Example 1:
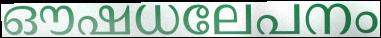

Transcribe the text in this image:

ഔഷധലേപനം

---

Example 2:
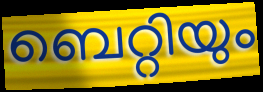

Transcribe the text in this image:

ബെറ്റിയും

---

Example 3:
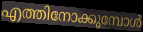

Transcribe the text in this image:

എത്തിനോക്കുമ്പോൾ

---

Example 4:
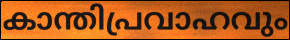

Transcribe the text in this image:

കാന്തിപ്രവാഹവും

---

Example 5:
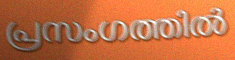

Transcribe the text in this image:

പ്രസംഗത്തിൽ